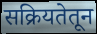
सक्रियतेतून